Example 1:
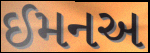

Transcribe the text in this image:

ઈમનઅ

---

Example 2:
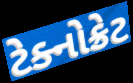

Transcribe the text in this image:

ટેક્નોક્રેટ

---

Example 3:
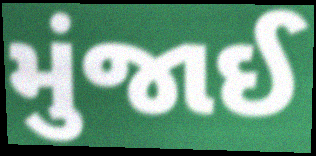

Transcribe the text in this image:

મુંજાઈ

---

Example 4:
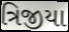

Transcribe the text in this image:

ત્રિજીયા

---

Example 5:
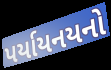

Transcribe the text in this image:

પર્યાયનયનો